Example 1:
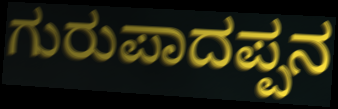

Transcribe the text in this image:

ಗುರುಪಾದಪ್ಪನ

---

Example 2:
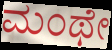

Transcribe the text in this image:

ಮಂಥೇ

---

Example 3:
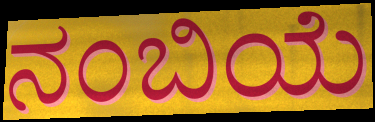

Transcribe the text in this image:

ನಂಬಿಯೆ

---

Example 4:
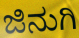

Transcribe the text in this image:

ಜಿನುಗಿ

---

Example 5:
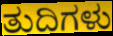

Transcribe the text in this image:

ತುದಿಗಳು